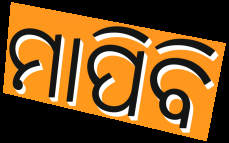
ମାପିବି